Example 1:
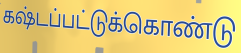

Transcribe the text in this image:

கஷ்டப்பட்டுக்கொண்டு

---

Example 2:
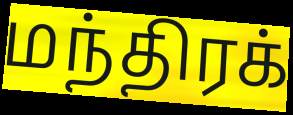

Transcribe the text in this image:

மந்திரக்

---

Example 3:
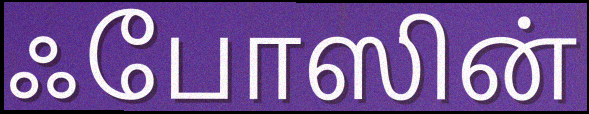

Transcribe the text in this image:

ஃபோஸின்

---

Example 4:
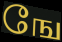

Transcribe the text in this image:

ஙே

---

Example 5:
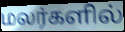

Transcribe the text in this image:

மலர்களில்